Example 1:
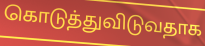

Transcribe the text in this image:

கொடுத்துவிடுவதாக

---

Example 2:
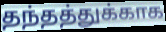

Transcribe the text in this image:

தந்தத்துக்காக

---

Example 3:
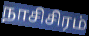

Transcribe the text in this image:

நாசிசிரம்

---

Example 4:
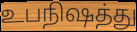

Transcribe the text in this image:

உபநிஷத்து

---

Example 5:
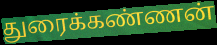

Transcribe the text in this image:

துரைக்கண்ணன்